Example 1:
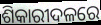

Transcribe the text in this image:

ଶିକାରୀଦଳରେ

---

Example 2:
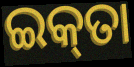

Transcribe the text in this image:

ଇକ୍‌ତା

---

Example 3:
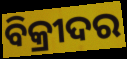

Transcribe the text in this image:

ବିକ୍ରୀଦର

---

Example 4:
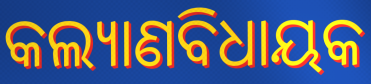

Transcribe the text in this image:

କଲ୍ୟାଣବିଧାୟକ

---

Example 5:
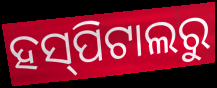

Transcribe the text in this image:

ହସ୍‌ପିଟାଲରୁ